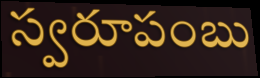
స్వరూపంబు